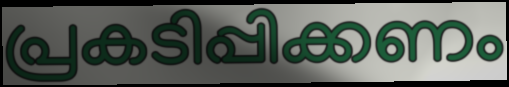
പ്രകടിപ്പിക്കണം